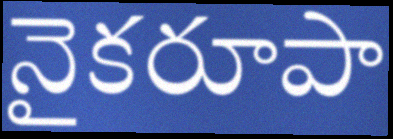
నైకరూపా